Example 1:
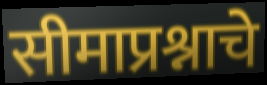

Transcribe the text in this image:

सीमाप्रश्नाचे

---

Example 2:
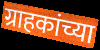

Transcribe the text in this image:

ग्राहकांच्या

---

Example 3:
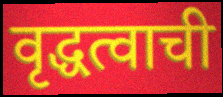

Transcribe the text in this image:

वृद्धत्वाची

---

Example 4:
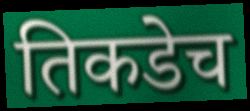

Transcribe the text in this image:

तिकडेच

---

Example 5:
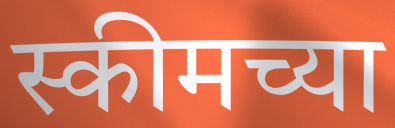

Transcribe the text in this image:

स्कीमच्या